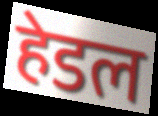
हेडल